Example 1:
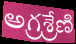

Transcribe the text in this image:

అగ్రశ్రేణి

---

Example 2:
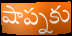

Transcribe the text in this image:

షాప్నకు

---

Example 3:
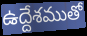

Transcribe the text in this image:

ఉద్దేశముతో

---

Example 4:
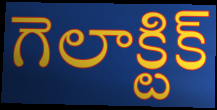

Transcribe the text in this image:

గెలాక్టిక్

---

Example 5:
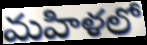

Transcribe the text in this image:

మహిళలో